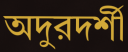
অদুরদর্শী